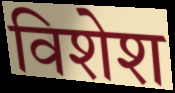
विशेश